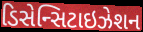
ડિસેન્સિટાઇઝેશન